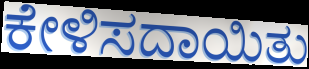
ಕೇಳಿಸದಾಯಿತು